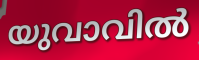
യുവാവിൽ